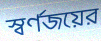
স্বর্ণজয়ের